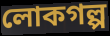
লোকগল্প